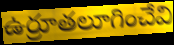
ఉర్రూతలూగించేవి